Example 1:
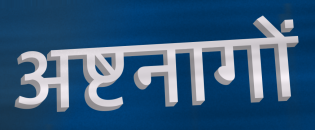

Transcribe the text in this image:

अष्टनागों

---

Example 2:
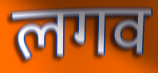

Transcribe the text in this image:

लगव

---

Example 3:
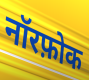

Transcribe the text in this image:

नॉरफ़ोक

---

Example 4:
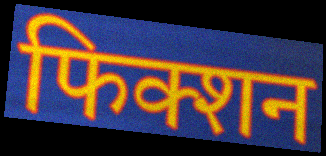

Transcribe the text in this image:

फिक्शन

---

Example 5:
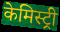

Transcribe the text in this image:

केमिस्ट्री